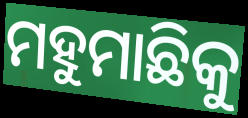
ମହୁମାଛିକୁ